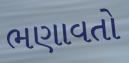
ભણાવતો